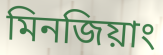
মিনজিয়াং